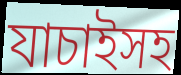
যাচাইসহ